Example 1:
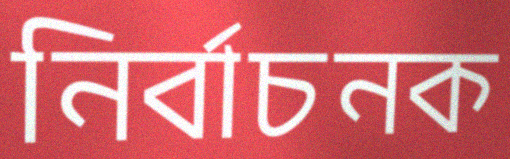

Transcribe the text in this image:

নিৰ্বাচনক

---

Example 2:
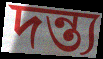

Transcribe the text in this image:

দন্ত্য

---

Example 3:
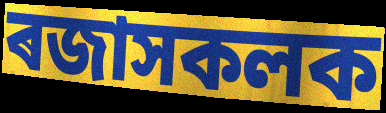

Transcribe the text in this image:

ৰজাসকলক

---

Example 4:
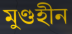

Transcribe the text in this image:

মুণ্ডহীন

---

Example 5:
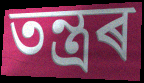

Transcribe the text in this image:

তন্ত্ৰৰ